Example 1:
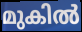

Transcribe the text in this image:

മുകിൽ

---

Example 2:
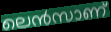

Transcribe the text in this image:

ലെൻസാണ്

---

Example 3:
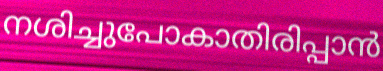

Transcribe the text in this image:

നശിച്ചുപോകാതിരിപ്പാൻ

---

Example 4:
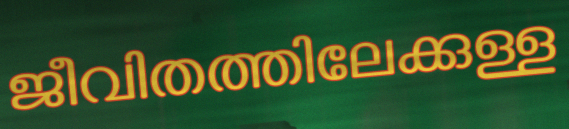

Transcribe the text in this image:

ജീവിതത്തിലേക്കുള്ള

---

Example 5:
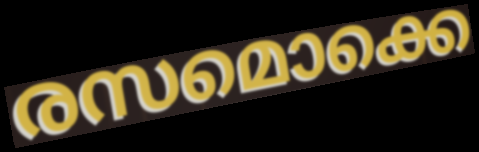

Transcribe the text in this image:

രസമൊക്കെ